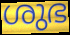
ശുഭ